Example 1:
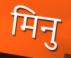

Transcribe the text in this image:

मिनु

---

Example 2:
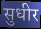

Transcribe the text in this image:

सुधीर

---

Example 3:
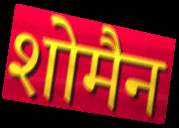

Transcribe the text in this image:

शोमैन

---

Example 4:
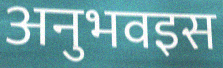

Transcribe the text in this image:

अनुभवइस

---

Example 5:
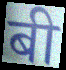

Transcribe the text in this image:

बी